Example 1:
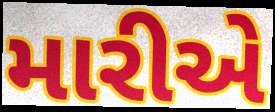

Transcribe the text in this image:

મારીએ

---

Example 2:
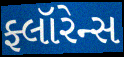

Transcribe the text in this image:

ફ્લૉરેન્સ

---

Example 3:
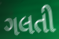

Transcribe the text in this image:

ગલતી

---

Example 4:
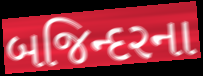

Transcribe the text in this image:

બજિન્દરના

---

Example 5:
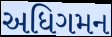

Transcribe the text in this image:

અધિગમન